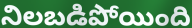
నిలబడిపోయింది